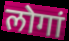
लोगां